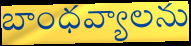
బాంధవ్యాలను